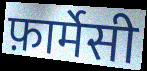
फ़ार्मेसी